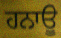
ਹਨਾਊ